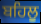
ਬਹਿਲੂ